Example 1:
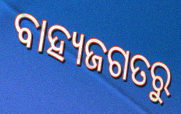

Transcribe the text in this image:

ବାହ୍ୟଜଗତରୁ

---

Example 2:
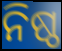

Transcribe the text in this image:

ନିଷ୍ଠ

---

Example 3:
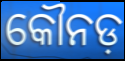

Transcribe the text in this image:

କୌନଡ଼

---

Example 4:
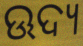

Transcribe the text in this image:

ଊଦ୍ୟ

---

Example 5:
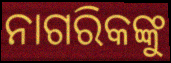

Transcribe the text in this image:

ନାଗରିକଙ୍କୁ